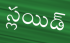
స్లయిడ్